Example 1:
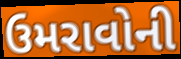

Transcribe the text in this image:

ઉમરાવોની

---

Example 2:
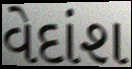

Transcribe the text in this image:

વેદાંશ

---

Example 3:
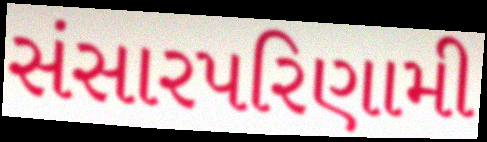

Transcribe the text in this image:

સંસારપરિણામી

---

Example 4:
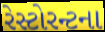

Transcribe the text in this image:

રેસ્ટોરન્ટના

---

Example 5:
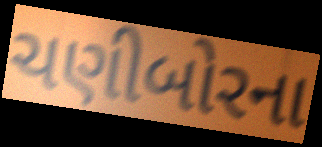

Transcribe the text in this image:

ચણીબોરના